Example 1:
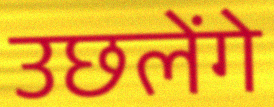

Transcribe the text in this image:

उछलेंगे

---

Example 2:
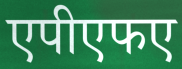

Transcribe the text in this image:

एपीएफए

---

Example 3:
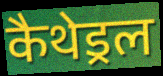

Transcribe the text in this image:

कैथेड्रल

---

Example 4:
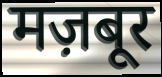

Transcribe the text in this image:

मज़बूर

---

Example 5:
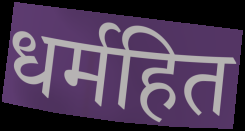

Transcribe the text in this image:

धर्महित